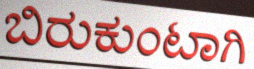
ಬಿರುಕುಂಟಾಗಿ